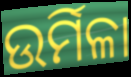
ଉର୍ମିଳା